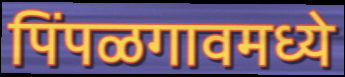
पिंपळगावमध्ये